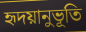
হৃদয়ানুভূতি